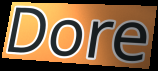
Dore